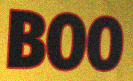
BOO